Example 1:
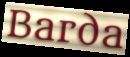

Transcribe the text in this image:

Barda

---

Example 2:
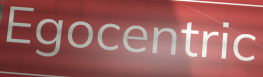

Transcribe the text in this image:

Egocentric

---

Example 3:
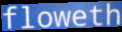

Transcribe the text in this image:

floweth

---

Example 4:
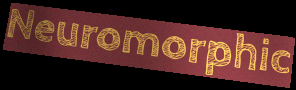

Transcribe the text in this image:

Neuromorphic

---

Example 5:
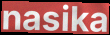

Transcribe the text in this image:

nasika